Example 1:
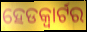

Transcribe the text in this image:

ହେଡକ୍ୱାର୍ଟର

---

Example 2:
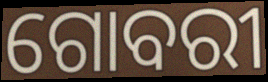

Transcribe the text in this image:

ଗୋବରୀ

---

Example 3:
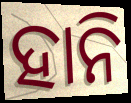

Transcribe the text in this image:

ହାନି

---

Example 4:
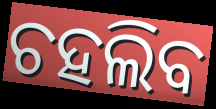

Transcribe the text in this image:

ଚହଲିବ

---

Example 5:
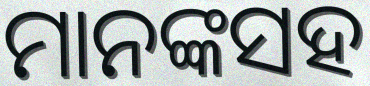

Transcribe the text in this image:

ମାନଙ୍କସହ